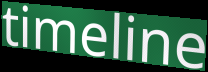
timeline